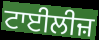
ਟਾਈਲੀਜ਼